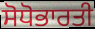
ਸੋਧੋਭਾਰਤੀ